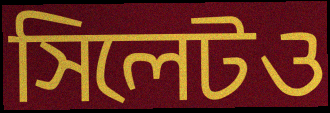
সিলেটও